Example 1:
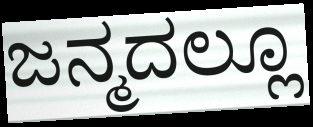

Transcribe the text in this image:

ಜನ್ಮದಲ್ಲೂ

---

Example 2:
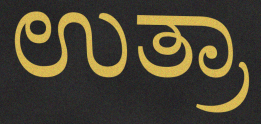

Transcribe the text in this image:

ಉತ್ರಾ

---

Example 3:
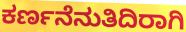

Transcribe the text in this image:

ಕರ್ಣನೆನುತಿದಿರಾಗಿ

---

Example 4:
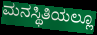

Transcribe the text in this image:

ಮನಸ್ಥಿತಿಯಲ್ಲೂ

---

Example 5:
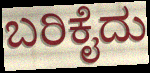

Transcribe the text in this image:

ಬರಿಕೈದು